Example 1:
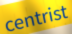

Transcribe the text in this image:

centrist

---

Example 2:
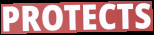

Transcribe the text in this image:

PROTECTS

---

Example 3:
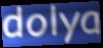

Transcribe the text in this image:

dolya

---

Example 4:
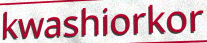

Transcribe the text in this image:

kwashiorkor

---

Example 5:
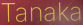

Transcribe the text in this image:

Tanaka